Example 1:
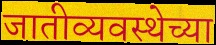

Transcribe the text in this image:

जातीव्यवस्थेच्या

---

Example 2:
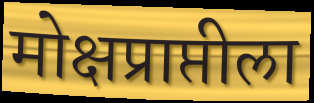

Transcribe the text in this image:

मोक्षप्राप्तीला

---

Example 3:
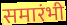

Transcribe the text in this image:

समारंभी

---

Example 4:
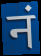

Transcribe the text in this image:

नं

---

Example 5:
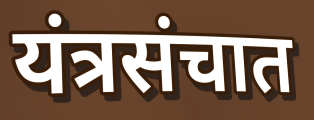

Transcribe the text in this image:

यंत्रसंचात